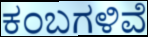
ಕಂಬಗಳಿವೆ